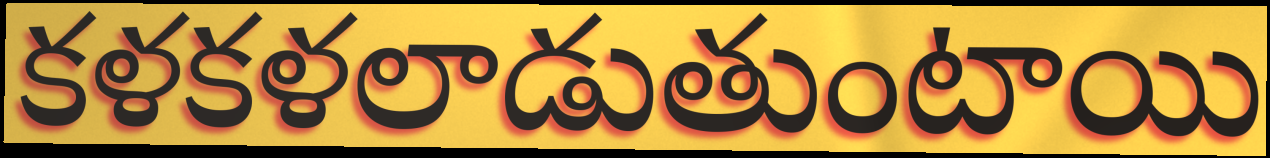
కళకళలాడుతుంటాయి